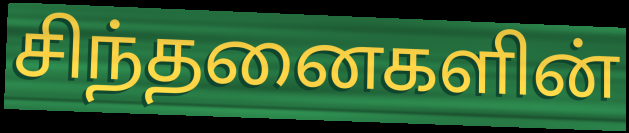
சிந்தனைகளின்